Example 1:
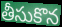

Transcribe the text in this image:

తీసుకొన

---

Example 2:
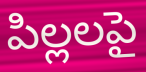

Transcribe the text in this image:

పిల్లలపై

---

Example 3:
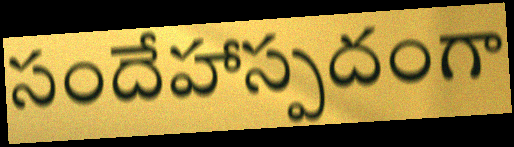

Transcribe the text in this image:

సందేహాస్పదంగా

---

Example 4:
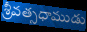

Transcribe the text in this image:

శ్రీవత్సధాముడు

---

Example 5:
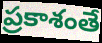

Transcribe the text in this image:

ప్రకాశంతే